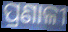
ପ୍ରଣାଳୀ